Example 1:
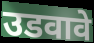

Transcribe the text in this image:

उडवावे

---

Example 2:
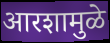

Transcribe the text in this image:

आरशामुळे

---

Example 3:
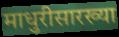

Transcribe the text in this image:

माधुरीसारख्या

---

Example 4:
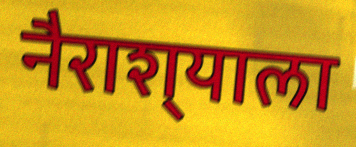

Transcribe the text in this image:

नैराश्याला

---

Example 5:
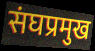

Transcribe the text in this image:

संघप्रमुख